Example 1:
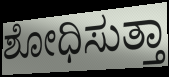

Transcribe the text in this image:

ಶೋಧಿಸುತ್ತಾ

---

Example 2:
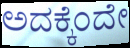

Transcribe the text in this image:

ಅದಕ್ಕೆಂದೇ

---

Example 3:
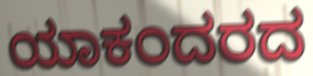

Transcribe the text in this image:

ಯಾಕಂದರದ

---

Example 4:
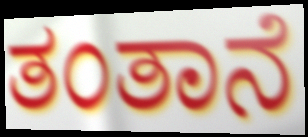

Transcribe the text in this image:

ತಂತಾನೆ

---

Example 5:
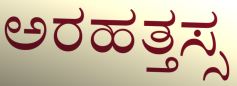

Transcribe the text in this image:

ಅರಹತ್ತಸ್ಸ